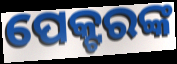
ପେକ୍ଟରଙ୍କ